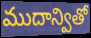
ముదాన్వితో